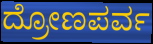
ದ್ರೋಣಪರ್ವ